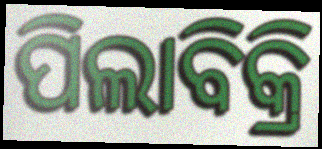
ପିଲାବିକ୍ରି